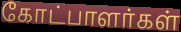
கோட்பாளர்கள்